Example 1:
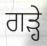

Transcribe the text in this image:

ਗੜ੍ਹੇ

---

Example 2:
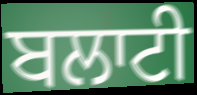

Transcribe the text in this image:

ਬਲਾਟੀ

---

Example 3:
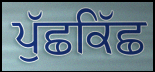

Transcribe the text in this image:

ਪੁੱਛਕਿੱਛ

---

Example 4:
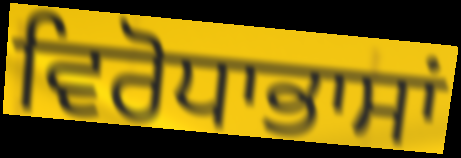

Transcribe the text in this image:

ਵਿਰੋਧਾਭਾਸਾਂ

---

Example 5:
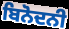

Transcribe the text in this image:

ਬਿਨੋਦਨੀ